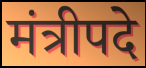
मंत्रीपदे